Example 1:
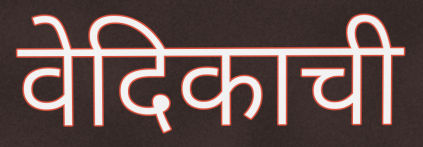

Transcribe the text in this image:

वेदिकाची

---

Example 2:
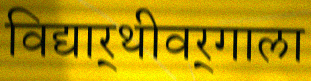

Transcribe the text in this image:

विद्यार्थीवर्गाला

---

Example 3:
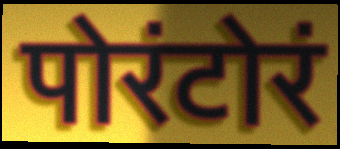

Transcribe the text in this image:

पोरंटोरं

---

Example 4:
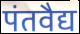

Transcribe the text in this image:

पंतवैद्य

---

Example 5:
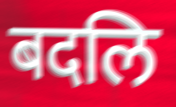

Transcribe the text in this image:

बदलि